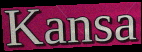
Kansa